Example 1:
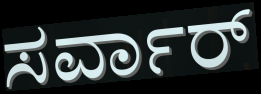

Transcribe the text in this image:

ಸರ್ವಾರ್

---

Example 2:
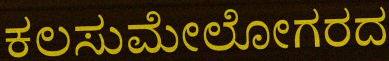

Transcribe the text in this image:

ಕಲಸುಮೇಲೋಗರದ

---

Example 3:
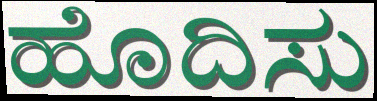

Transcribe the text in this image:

ಹೊದಿಸು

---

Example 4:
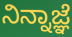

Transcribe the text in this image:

ನಿನ್ನಾಜ್ಞೆ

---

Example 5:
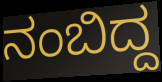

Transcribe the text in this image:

ನಂಬಿದ್ದ